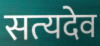
सत्‍यदेव